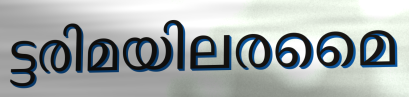
ട്ടരിമയിലരമൈ